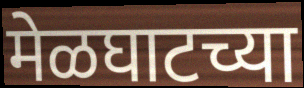
मेळघाटच्या